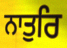
ਨਾਤੁਰਿ